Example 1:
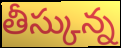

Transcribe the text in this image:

తీస్కున్న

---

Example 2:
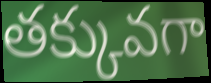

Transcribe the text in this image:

తక్కువగా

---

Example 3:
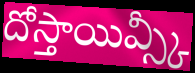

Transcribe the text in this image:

దోస్తాయివ్స్కీ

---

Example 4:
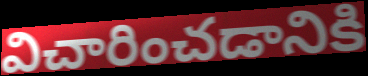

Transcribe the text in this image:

విచారించడానికి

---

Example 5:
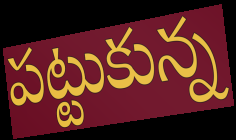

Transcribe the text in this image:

పట్టుకున్న